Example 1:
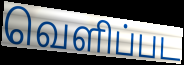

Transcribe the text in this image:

வெளிப்பட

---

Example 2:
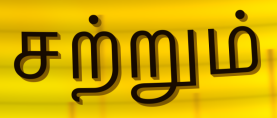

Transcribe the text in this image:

சற்றும்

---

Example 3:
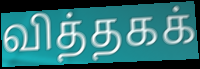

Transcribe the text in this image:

வித்தகக்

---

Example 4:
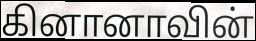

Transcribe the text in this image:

கினானாவின்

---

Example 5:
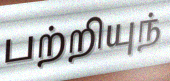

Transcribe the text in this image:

பற்றியுந்